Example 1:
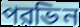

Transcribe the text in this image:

পরভিন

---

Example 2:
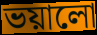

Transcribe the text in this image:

ভয়ালো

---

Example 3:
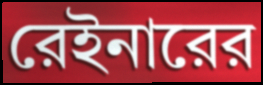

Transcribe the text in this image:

রেইনারের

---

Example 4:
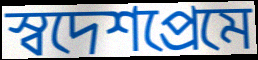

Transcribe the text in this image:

স্বদেশপ্রেমে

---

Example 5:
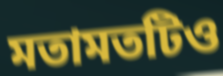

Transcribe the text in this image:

মতামতটিও